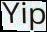
Yip